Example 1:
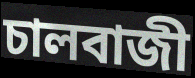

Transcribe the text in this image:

চালবাজী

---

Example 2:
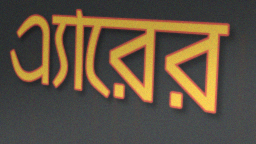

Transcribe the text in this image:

এ্যারের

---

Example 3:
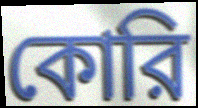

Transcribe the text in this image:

কোরি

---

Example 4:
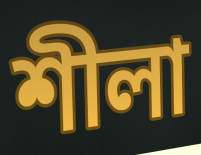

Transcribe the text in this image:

শীলা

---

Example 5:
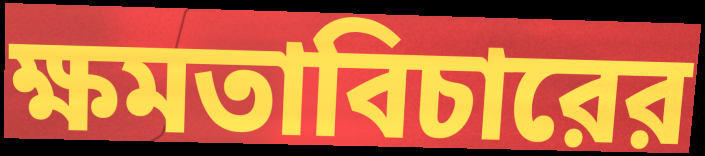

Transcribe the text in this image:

ক্ষমতাবিচারের